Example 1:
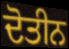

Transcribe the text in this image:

ਦੋਤੀਨ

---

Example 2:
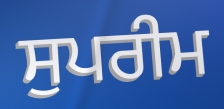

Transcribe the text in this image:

ਸੁਪਰੀਮ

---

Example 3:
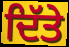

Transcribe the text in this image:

ਦਿੱਤੇ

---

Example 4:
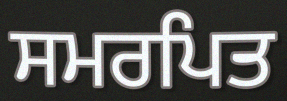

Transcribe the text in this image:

ਸਮਰਪਿਤ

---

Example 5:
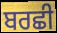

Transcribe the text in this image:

ਬਰਛੀ